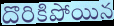
దొరికిపోయిన